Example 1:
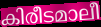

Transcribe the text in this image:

കിരീടമാലീ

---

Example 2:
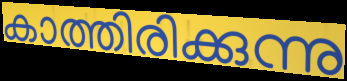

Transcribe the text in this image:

കാത്തിരിക്കുന്നു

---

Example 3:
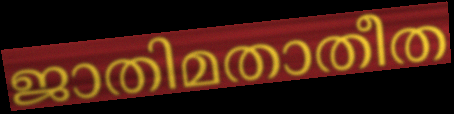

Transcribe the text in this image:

ജാതിമതാതീത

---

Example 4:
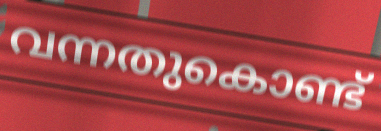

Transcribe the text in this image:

വന്നതുകൊണ്ട്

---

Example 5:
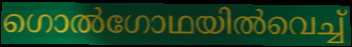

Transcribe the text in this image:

ഗൊൽഗോഥയിൽവെച്ച്